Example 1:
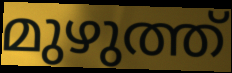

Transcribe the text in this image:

മുഴുത്ത്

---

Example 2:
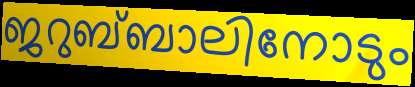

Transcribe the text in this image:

ജറുബ്‌ബാലിനോടും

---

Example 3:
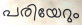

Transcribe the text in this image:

പരിയേറും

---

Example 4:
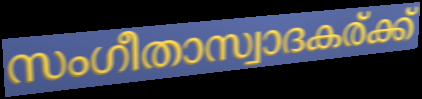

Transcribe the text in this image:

സംഗീതാസ്വാദകര്ക്ക്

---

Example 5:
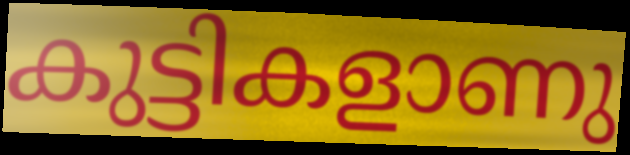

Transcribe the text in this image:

കുട്ടികളാണു